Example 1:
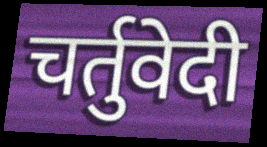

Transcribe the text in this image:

चर्तुवेदी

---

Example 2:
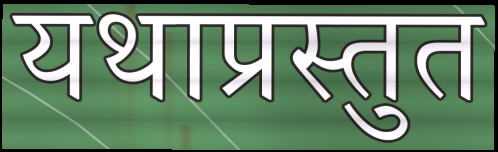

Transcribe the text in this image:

यथाप्रस्तुत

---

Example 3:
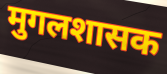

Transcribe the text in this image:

मुगलशासक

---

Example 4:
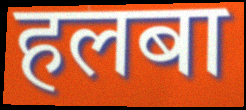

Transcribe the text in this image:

हलबा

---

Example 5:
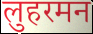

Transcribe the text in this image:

लुहरमन